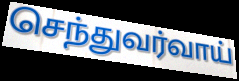
செந்துவர்வாய்